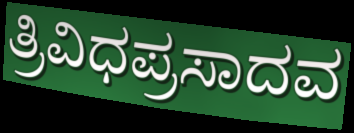
ತ್ರಿವಿಧಪ್ರಸಾದವ